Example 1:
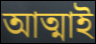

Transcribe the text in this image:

আত্মাই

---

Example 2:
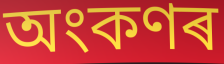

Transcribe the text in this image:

অংকণৰ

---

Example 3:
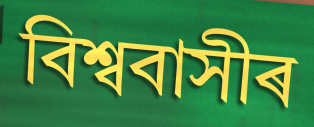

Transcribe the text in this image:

বিশ্ববাসীৰ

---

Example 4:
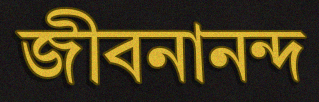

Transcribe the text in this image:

জীবনানন্দ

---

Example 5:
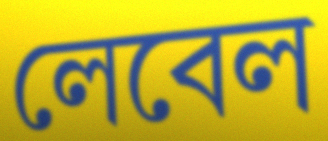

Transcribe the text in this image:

লেবেল